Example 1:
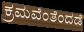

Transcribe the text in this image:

ಕ್ರಮವೆಂತೆಂದಡೆ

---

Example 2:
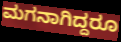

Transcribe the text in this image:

ಮಗನಾಗಿದ್ದರೂ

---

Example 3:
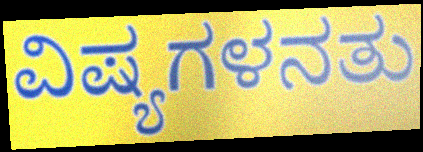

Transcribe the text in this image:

ವಿಷ್ಯಗಳನತು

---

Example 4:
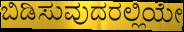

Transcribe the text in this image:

ಬಿಡಿಸುವುದರಲ್ಲಿಯೇ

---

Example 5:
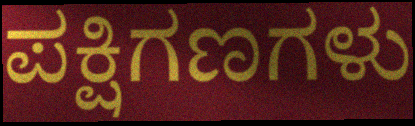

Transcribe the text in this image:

ಪಕ್ಷಿಗಣಗಳು